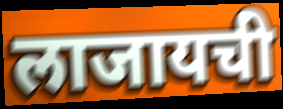
लाजायची